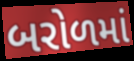
બરોળમાં